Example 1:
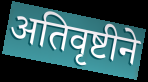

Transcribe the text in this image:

अतिवृष्टीने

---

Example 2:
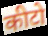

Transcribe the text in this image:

कीटो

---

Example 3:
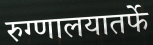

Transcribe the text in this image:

रुग्णालयातर्फे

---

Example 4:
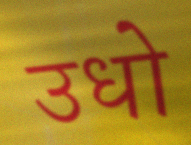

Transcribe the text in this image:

उधो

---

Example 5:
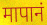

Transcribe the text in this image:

मापानं